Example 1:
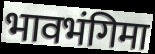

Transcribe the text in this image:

भावभंगिमा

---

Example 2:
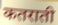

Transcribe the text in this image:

कतराती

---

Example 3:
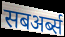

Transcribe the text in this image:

सबअर्ब्स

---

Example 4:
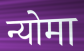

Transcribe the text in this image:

न्योमा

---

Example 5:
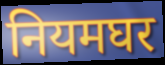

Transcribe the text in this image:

नियमघर